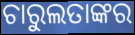
ଚାରୁଲତାଙ୍କର